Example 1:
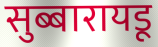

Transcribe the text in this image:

सुब्बारायडू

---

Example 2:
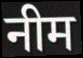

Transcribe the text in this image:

नीम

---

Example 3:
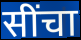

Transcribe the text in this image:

सींचा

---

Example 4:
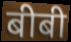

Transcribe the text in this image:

बीबी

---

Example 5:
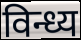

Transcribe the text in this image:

विन्ध्य